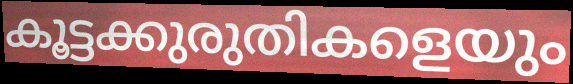
കൂട്ടക്കുരുതികളെയും